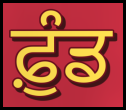
ਫ਼ੁੰਡ